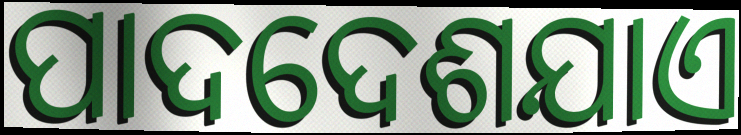
ପାଦଦେଶଯାଏ